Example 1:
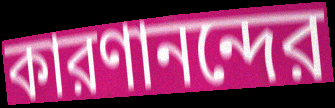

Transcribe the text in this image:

কারণানন্দের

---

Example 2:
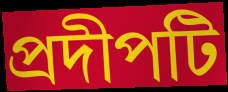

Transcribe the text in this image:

প্রদীপটি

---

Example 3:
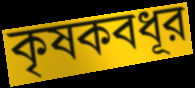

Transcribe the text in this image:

কৃষকবধূর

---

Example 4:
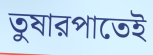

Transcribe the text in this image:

তুষারপাতেই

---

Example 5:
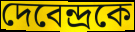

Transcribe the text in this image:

দেবেন্দ্রকে